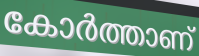
കോർത്താണ്